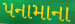
પનામાના